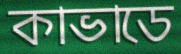
কাভাডে